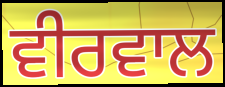
ਵੀਰਵਾਲ